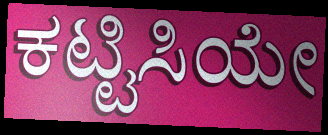
ಕಟ್ಟಿಸಿಯೇ